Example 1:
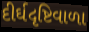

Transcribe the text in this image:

દીર્ઘદૃષ્ટિવાળા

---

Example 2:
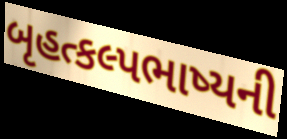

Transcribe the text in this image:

બૃહત્કલ્પભાષ્યની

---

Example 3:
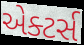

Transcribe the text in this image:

એક્ટર્સ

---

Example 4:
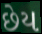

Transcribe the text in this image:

છેય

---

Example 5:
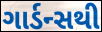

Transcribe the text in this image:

ગાર્ડન્સથી